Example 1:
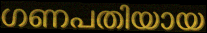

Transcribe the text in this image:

ഗണപതിയായ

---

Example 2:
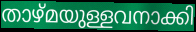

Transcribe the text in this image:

താഴ്മയുള്ളവനാക്കി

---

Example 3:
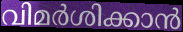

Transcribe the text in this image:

വിമർശിക്കാൻ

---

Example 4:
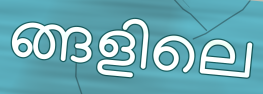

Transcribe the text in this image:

ങ്ങളിലെ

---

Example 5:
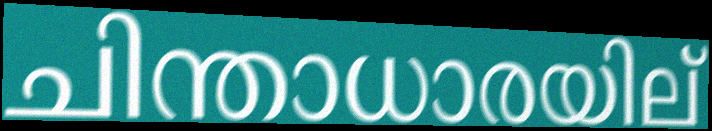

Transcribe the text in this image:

ചിന്താധാരയില്